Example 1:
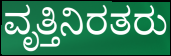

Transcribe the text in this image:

ವೃತ್ತಿನಿರತರು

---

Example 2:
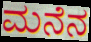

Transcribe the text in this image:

ಮನೆನ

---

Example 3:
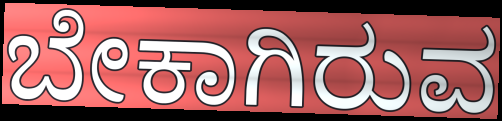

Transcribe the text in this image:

ಬೇಕಾಗಿರುವ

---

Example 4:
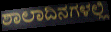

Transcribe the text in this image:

ಶಾಲಾದಿನಗಳಲ್ಲಿ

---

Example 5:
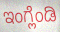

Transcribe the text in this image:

ಇಂಗ್ಲೆಂಡಿ